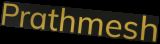
Prathmesh